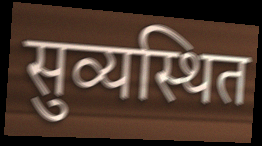
सुव्यस्थित